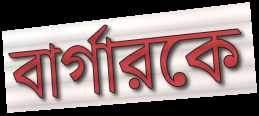
বার্গারকে